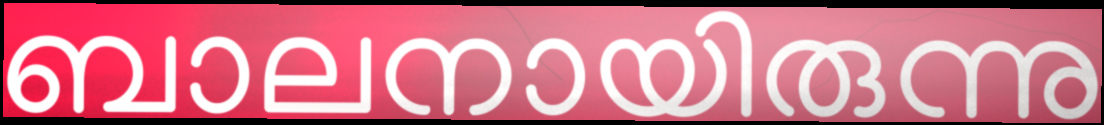
ബാലനായിരുന്നു